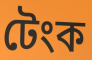
টেংক